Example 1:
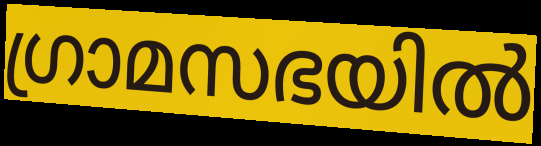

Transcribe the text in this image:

ഗ്രാമസഭയിൽ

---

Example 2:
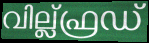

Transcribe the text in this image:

വില്ല്ഫ്രഡ്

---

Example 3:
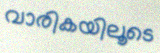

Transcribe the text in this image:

വാരികയിലൂടെ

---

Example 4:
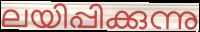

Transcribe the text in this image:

ലയിപ്പിക്കുന്നു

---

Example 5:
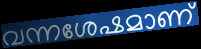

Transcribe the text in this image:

വന്നശേഷമാണ്